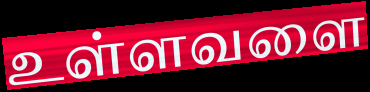
உள்ளவளை